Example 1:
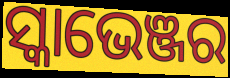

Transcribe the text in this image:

ସ୍କାଭେଞ୍ଜର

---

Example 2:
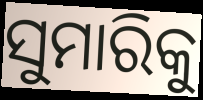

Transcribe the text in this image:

ସୁମାରିକୁ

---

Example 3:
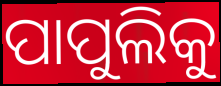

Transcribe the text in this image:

ପାପୁଲିକୁ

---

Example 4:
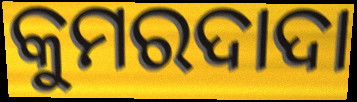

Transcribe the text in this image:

କୁମରଦାଦା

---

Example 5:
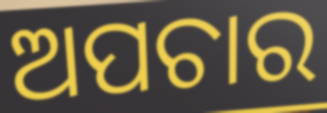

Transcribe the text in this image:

ଅପଚାର